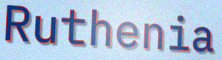
Ruthenia